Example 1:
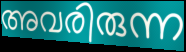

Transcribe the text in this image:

അവരിരുന്ന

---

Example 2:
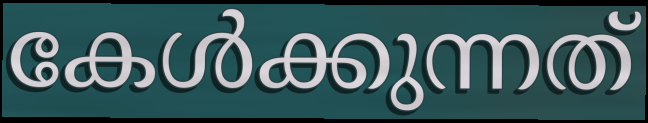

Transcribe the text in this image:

കേൾക്കുന്നത്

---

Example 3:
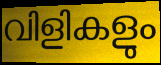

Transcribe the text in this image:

വിളികളും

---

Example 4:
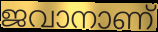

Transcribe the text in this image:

ജവാനാണ്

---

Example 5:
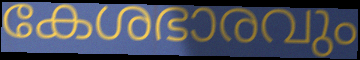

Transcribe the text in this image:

കേശഭാരവും